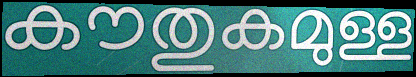
കൗതുകമുള്ള